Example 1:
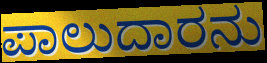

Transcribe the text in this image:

ಪಾಲುದಾರನು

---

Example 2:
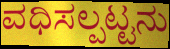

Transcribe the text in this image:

ವಧಿಸಲ್ಪಟ್ಟನು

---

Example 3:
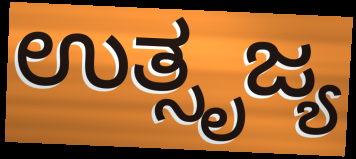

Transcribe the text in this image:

ಉತ್ಸೃಜ್ಯ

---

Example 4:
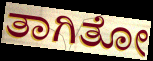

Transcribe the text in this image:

ತಾಗಿತೋ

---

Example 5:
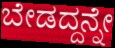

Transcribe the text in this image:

ಬೇಡದ್ದನ್ನೇ